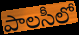
పాలసీలో